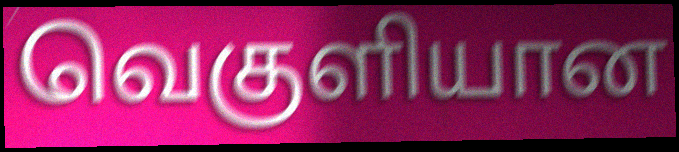
வெகுளியான